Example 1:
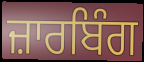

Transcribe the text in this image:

ਜ਼ਾਰਬਿੰਗ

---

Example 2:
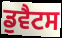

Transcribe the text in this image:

ਡੁਵੈਟਸ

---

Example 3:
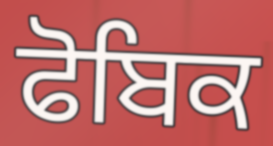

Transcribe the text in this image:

ਫੋਬਿਕ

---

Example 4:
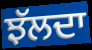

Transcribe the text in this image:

ਝੱਲਦਾ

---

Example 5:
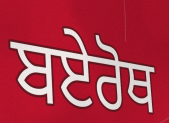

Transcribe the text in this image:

ਬਏਰੋਥ